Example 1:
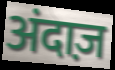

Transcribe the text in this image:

अंदाज़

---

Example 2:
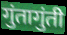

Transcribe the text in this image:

गुंतागुंती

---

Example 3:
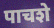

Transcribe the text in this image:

पाचशे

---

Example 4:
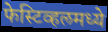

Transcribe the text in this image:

फेस्टिव्हलमध्ये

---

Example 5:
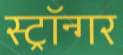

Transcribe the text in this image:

स्ट्रॉन्गर